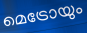
മെട്രോയും